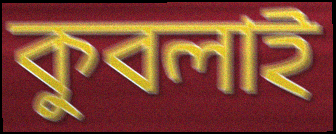
কুবলাই